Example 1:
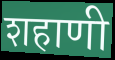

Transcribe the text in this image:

शहाणी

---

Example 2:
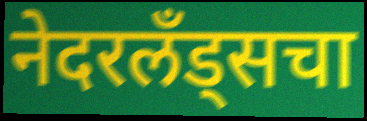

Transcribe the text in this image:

नेदरलँड्सचा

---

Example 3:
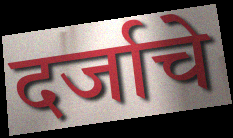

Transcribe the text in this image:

दर्जाचे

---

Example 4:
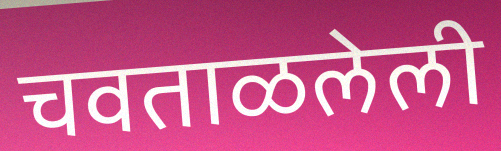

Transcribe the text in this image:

चवताळलेली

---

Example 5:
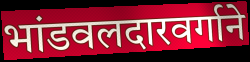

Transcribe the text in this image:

भांडवलदारवर्गाने